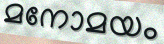
മനോമയം